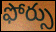
ఫోర్సు